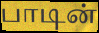
பாடின்